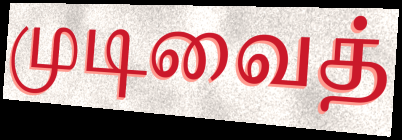
முடிவைத்